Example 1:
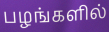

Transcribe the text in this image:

பழங்களில்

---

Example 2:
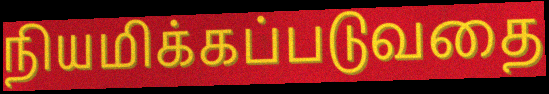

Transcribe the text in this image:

நியமிக்கப்படுவதை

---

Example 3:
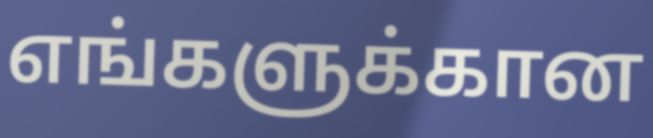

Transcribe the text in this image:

எங்களுக்கான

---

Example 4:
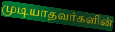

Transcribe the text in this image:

முடியாதவர்களின்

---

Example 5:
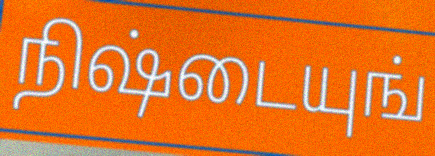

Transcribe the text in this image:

நிஷ்டையுங்